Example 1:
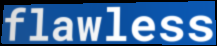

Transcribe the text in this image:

flawless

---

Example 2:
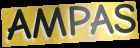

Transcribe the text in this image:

AMPAS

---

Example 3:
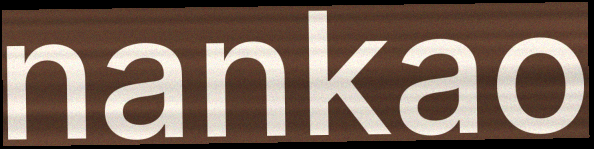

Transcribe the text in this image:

nankao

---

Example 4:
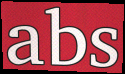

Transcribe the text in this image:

abs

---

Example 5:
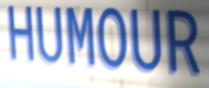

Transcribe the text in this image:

HUMOUR